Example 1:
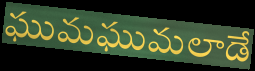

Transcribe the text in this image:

ఘుమఘుమలాడే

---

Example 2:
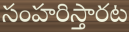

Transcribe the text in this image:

సంహరిస్తారట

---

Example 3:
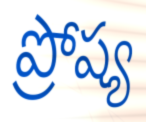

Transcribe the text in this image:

ప్రోష్య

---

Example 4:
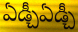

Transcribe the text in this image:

ఏడ్చీఏడ్చీ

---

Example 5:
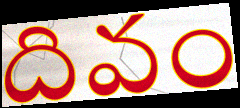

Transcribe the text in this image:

దివం